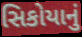
સિકોયાનું